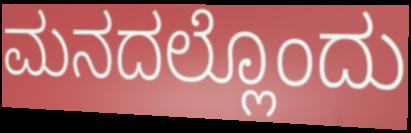
ಮನದಲ್ಲೊಂದು